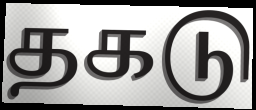
தகடு